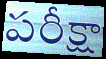
పరీక్షా